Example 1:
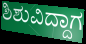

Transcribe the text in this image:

ಶಿಶುವಿದ್ದಾಗ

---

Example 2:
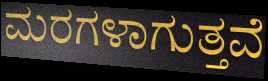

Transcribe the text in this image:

ಮರಗಳಾಗುತ್ತವೆ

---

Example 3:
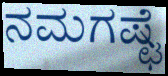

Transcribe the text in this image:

ನಮಗಷ್ಟೆ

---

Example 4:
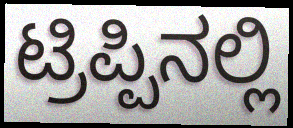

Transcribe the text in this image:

ಟ್ರಿಪ್ಪಿನಲ್ಲಿ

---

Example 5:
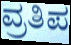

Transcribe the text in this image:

ವ್ರತಿಪ